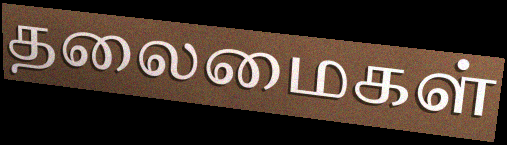
தலைமைகள்